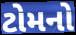
ટોમનો